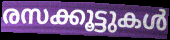
രസക്കൂട്ടുകൾ